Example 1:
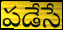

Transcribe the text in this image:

పడేసే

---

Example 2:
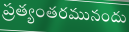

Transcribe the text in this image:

ప్రత్యంతరమునందు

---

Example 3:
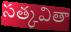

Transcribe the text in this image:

సత్కవితా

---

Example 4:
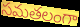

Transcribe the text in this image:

సమతలంగా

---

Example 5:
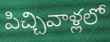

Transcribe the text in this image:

పిచ్చివాళ్లలో